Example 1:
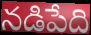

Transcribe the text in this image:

నడిపేది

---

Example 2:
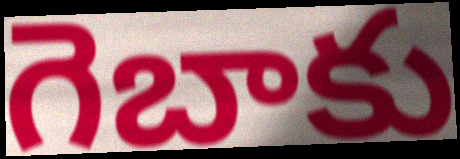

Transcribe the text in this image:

గెబాకు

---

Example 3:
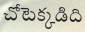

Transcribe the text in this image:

చోటెక్కడిది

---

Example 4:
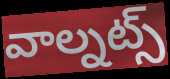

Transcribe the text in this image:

వాల్నట్స్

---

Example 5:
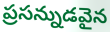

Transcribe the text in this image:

ప్రసన్నుడవైన